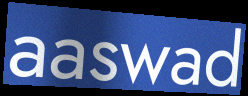
aaswad